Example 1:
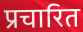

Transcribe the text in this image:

प्रचारित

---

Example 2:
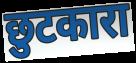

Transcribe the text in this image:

छुटकारा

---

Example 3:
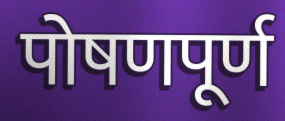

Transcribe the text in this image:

पोषणपूर्ण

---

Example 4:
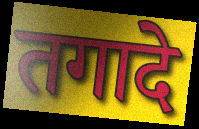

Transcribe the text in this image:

तगादे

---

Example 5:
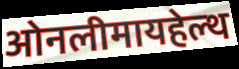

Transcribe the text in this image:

ओनलीमायहेल्थ